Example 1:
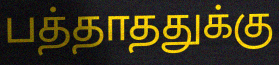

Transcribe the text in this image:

பத்தாததுக்கு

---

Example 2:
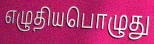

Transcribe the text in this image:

எழுதியபொழுது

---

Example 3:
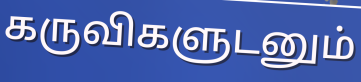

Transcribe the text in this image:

கருவிகளுடனும்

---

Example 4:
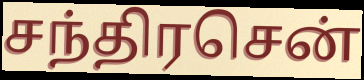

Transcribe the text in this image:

சந்திரசென்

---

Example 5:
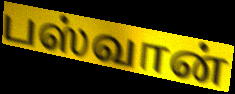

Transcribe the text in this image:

பஸ்வான்